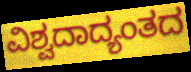
ವಿಶ್ವದಾದ್ಯಂತದ